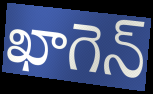
ఖాగెన్